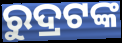
ରୁଦ୍ରଟଙ୍କ